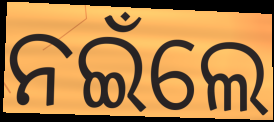
ନଇଁଲେ